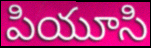
పియూసి